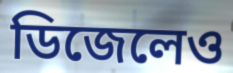
ডিজেলেও